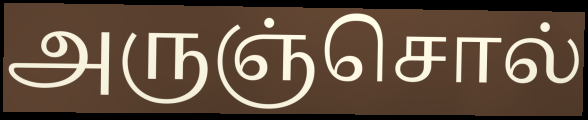
அருஞ்சொல்